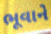
ભૂવાને